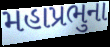
મહાપ્રભુના